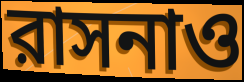
রাসনাও